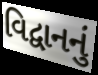
વિદ્વાનનું